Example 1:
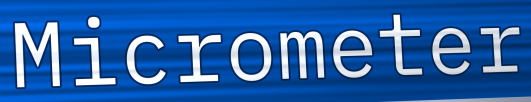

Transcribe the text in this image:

Micrometer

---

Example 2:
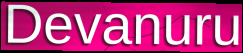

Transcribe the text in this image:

Devanuru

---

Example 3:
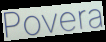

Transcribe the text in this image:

Povera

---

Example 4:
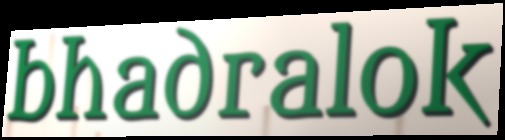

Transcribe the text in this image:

bhadralok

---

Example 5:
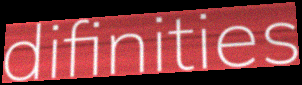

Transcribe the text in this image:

difinities